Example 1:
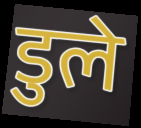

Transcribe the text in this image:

डुले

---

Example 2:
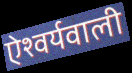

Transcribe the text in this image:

ऐश्वर्यवाली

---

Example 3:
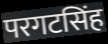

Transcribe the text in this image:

परगटसिंह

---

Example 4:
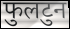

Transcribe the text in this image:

फुलटुन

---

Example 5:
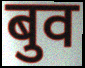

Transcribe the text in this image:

बुव